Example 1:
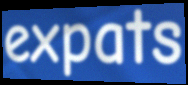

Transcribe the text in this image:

expats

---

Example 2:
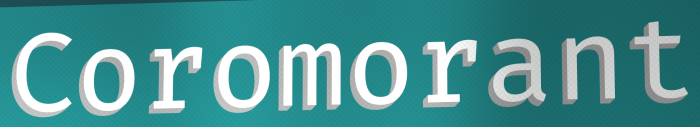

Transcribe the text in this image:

Coromorant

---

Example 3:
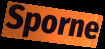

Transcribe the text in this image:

Sporne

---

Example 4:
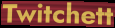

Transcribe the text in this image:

Twitchett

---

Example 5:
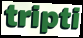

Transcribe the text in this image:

tripti